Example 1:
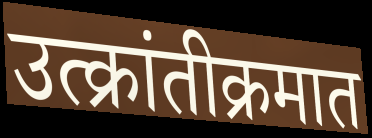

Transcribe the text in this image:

उत्क्रांतीक्रमात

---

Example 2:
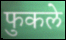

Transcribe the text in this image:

फुकले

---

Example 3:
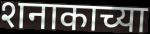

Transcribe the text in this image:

शनाकाच्या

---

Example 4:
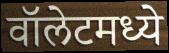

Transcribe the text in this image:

वॉलेटमध्ये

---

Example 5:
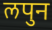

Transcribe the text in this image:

लपुन